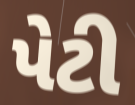
પેટી